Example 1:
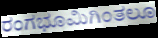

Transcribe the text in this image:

ರಂಗಭೂಮಿಗಿಂತಲೂ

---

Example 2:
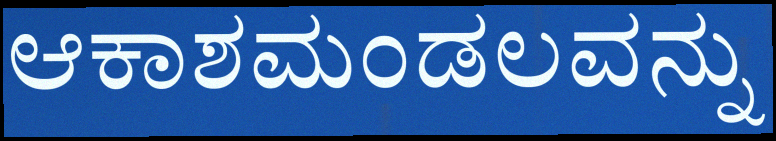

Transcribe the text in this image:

ಆಕಾಶಮಂಡಲವನ್ನು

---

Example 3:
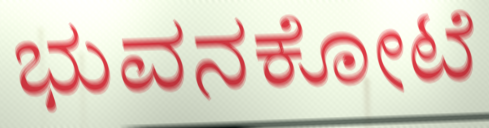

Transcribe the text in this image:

ಭುವನಕೋಟೆ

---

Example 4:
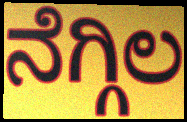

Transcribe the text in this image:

ನೆಗ್ಗಿಲ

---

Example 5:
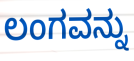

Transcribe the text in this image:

ಲಂಗವನ್ನು